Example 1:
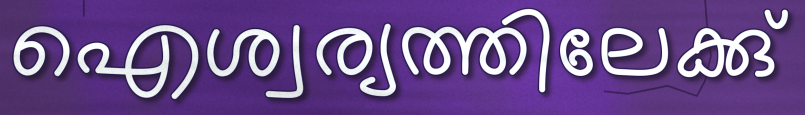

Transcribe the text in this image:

ഐശ്വര്യത്തിലേക്കു്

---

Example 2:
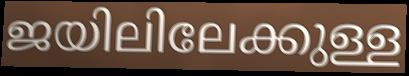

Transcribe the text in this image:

ജയിലിലേക്കുള്ള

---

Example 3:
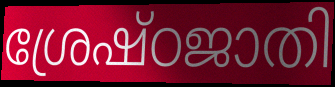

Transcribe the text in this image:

ശ്രേഷ്ഠജാതി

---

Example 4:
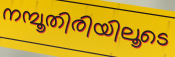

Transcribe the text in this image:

നമ്പൂതിരിയിലൂടെ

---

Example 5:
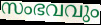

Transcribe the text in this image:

സംഭവവും